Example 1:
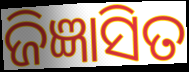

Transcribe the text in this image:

ଜିଜ୍ଞାସିତ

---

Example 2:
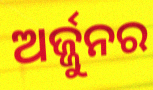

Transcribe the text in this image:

ଅର୍ଜ୍ଜୁନର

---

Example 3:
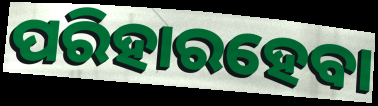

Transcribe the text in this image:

ପରିହାରହେବା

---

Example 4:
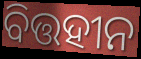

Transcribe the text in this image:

ବିତ୍ତହୀନ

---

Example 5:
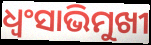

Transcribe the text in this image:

ଧ୍ଵଂସାଭିମୁଖୀ